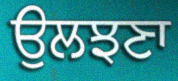
ਉਲਝਣਾ